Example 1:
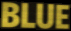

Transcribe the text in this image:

BLUE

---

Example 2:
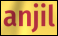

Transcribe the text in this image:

anjil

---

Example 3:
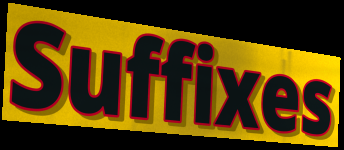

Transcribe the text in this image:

Suffixes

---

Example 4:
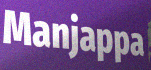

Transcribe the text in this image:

Manjappa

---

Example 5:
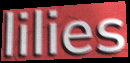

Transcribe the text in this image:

lilies